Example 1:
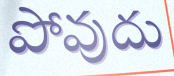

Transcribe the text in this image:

పోవుదు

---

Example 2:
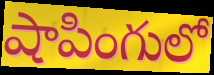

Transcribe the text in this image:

షాపింగులో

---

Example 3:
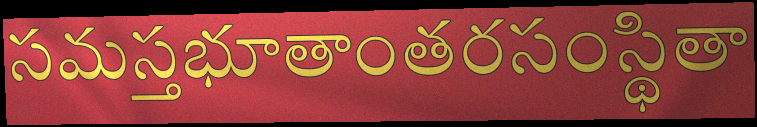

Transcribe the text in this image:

సమస్తభూతాంతరసంస్థితా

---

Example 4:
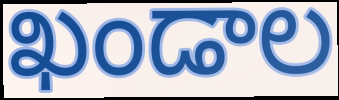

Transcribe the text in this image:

ఖండాల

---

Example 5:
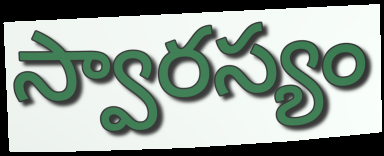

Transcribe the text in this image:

స్వారస్యం